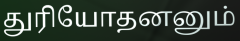
துரியோதனனும்